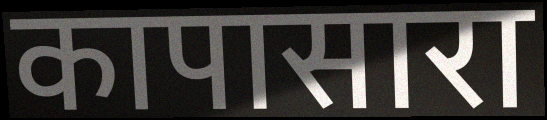
कापासारा